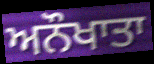
ਅਨੌਖਾਤਾ